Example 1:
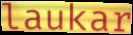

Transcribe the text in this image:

laukar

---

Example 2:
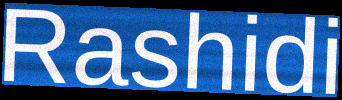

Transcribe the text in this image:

Rashidi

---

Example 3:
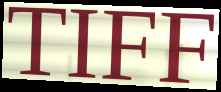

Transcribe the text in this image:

TIFF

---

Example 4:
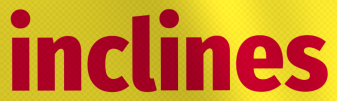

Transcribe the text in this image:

inclines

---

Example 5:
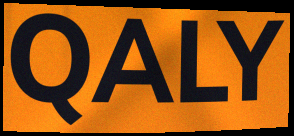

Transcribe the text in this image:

QALY